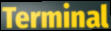
Terminal